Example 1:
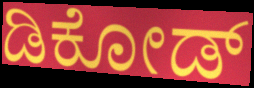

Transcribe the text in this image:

ಡಿಕೋಡ್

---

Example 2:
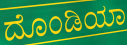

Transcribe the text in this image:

ದೊಂಡಿಯಾ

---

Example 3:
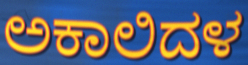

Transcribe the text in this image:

ಅಕಾಲಿದಳ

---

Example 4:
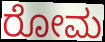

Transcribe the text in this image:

ರೋಮ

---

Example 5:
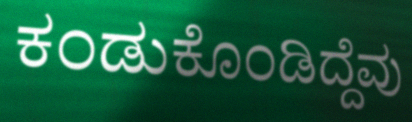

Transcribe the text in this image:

ಕಂಡುಕೊಂಡಿದ್ದೆವು